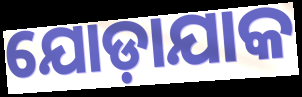
ଯୋଡ଼ାଯାକ